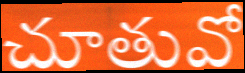
చూతువో